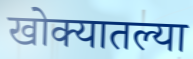
खोक्यातल्या